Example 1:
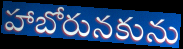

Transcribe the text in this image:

హాబోరునకును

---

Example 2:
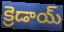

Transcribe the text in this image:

క్రెడాయ్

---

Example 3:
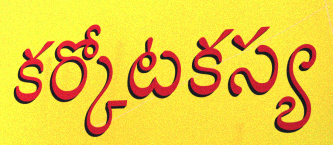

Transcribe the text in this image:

కర్కోటకస్య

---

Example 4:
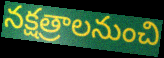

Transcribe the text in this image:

నక్షత్రాలనుంచి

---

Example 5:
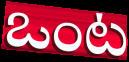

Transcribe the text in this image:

ఒంట